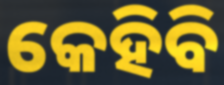
କେହିବି